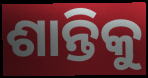
ଶାନ୍ତିକୁ